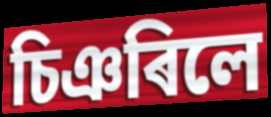
চিঞৰিলে